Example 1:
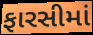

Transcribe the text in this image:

ફારસીમાં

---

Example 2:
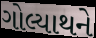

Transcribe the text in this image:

ગોલ્યાથને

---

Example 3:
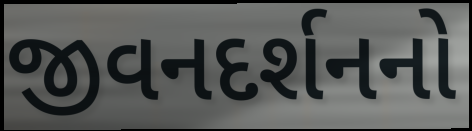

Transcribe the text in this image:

જીવનદર્શનનો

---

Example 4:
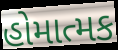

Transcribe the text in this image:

હોમાત્મક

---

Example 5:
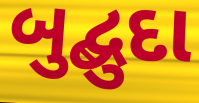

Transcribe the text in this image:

બુદ્બુદા